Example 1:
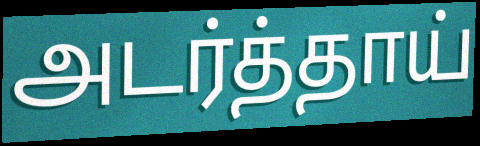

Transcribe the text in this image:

அடர்த்தாய்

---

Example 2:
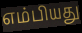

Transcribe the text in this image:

எம்பியது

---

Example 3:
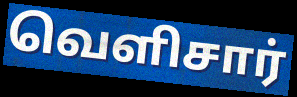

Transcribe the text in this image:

வெளிசார்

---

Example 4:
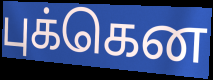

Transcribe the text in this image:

புக்கென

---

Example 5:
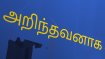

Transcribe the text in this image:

அறிந்தவனாக